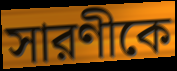
সারণীকে